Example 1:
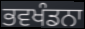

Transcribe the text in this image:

ਭਵਖੰਡਨਾ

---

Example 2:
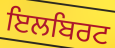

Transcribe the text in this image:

ਇਲਬਿਰਟ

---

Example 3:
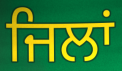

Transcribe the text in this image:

ਜਿਲਾਂ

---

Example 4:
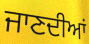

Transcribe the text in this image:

ਜਾਣਦੀਆਂ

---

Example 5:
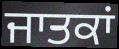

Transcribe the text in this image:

ਜਾਤਕਾਂ